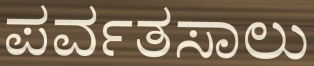
ಪರ್ವತಸಾಲು